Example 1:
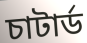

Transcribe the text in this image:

চাটার্ড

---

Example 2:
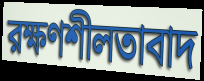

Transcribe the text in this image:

রক্ষণশীলতাবাদ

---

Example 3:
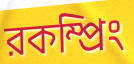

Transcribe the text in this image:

রকম্প্রিং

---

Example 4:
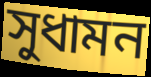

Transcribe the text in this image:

সুধামন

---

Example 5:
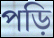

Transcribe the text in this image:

পড়ি